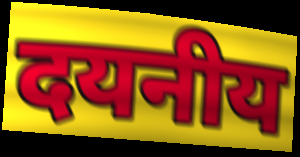
दयनीय